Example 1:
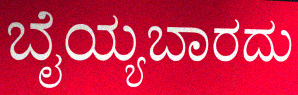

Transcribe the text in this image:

ಬೈಯ್ಯಬಾರದು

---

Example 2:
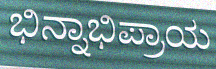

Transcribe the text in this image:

ಭಿನ್ನಾಭಿಪ್ರಾಯ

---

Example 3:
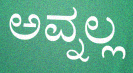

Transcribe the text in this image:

ಅವ್ನಲ್ಲ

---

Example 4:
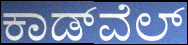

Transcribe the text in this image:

ಕಾಡ್‌ವೆಲ್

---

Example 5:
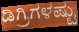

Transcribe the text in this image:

ಡಿಗ್ರಿಗಳಷ್ಟು